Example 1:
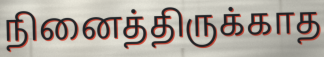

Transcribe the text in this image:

நினைத்திருக்காத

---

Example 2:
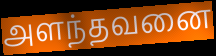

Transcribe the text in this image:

அளந்தவனை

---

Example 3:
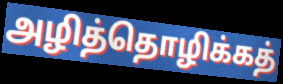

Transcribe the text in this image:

அழித்தொழிக்கத்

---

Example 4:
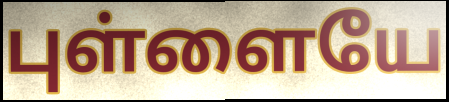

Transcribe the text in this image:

புள்ளையே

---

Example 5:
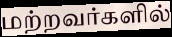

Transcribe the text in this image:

மற்றவர்களில்